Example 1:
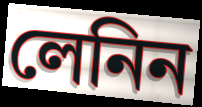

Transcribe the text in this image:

লেনিন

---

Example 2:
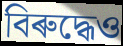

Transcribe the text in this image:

বিৰুদ্ধেও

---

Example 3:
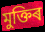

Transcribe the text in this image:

মুক্তিৰ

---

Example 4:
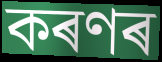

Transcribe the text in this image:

কৰণৰ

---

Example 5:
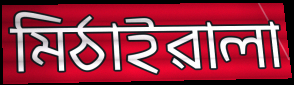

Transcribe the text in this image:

মিঠাইৱালা